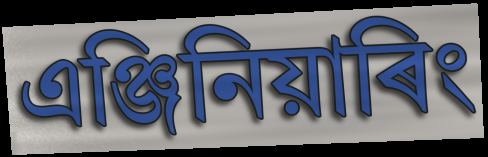
এঞ্জিনিয়াৰিং